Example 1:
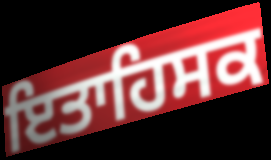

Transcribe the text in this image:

ਇਤਾਹਿਸਕ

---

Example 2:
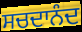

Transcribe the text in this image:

ਸਚਦਾਨੰਦ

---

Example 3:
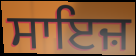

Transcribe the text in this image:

ਸਾਇਜ਼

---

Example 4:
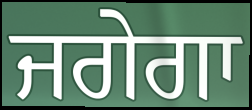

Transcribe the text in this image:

ਜਗੇਗਾ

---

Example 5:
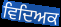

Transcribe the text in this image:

ਵਿਦਿਅਕ